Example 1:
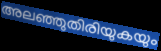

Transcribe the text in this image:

അലഞ്ഞുതിരിയുകയും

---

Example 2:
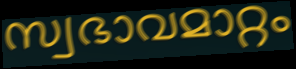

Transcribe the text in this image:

സ്വഭാവമാറ്റം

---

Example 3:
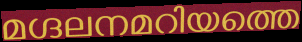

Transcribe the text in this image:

മഗ്ദലനമറിയത്തെ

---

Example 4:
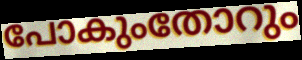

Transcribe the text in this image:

പോകുംതോറും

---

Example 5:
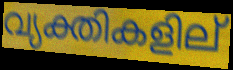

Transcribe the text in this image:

വ്യക്തികളില്